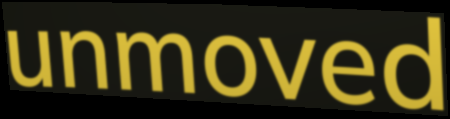
unmoved